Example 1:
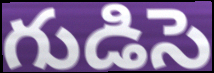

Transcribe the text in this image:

గుడిసె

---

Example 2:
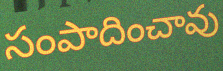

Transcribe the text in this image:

సంపాదించావు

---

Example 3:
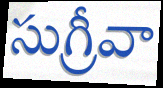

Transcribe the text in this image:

సుగ్రీవా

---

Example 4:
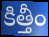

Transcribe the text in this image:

కిత్తీం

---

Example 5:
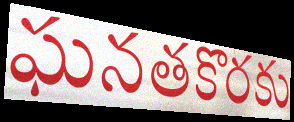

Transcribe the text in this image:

ఘనతకొరకు